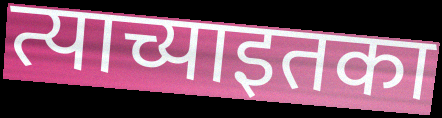
त्याच्याइतका